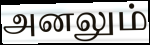
அனலும்